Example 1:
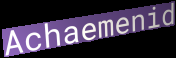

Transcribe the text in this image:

Achaemenid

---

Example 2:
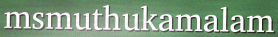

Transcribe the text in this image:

msmuthukamalam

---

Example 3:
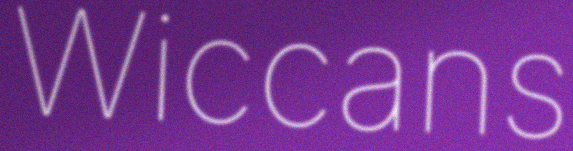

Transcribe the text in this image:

Wiccans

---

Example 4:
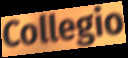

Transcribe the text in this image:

Collegio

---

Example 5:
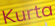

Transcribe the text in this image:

Kurta